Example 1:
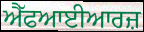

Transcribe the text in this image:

ਐੱਫਆਈਆਰਜ਼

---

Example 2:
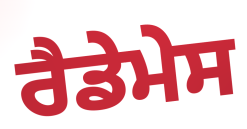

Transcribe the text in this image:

ਰੈਡੇਮੇਸ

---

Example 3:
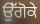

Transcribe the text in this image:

ਉੱਗੋਕੇ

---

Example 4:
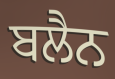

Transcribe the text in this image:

ਬਲੈਨ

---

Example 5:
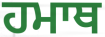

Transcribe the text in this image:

ਹਮਾਥ